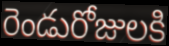
రెండురోజులకి